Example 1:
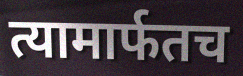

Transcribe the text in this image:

त्यामार्फतच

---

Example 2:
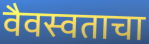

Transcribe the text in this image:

वैवस्वताचा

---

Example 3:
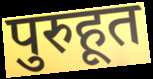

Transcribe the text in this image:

पुरुहूत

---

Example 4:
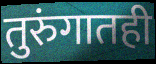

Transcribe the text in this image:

तुरुंगातही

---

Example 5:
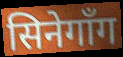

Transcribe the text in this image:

सिनेगाँग